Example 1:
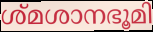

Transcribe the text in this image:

ശ്മശാനഭൂമി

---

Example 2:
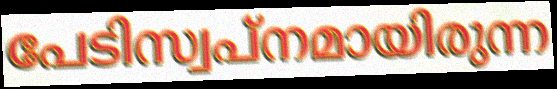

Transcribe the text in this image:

പേടിസ്വപ്നമായിരുന്ന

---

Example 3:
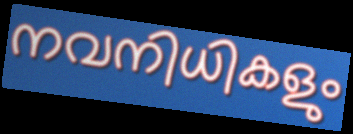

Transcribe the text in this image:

നവനിധികളും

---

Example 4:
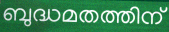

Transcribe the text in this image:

ബുദ്ധമതത്തിന്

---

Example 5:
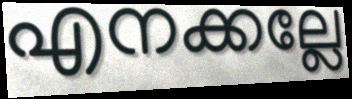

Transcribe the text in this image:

എനക്കല്ലേ